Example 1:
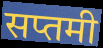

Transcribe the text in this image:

सप्तमी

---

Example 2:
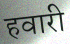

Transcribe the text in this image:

हवारी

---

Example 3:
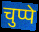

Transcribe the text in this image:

चुप्पे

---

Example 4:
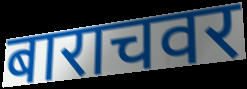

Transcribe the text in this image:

बाराचवर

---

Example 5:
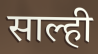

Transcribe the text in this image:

साल्ही